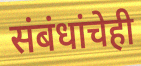
संबंधांचेही